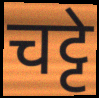
चट्टे